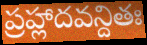
ప్రహ్లాదవన్దితః